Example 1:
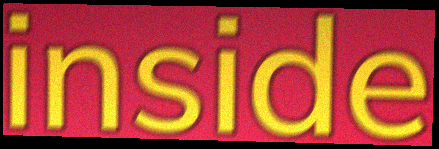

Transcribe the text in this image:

inside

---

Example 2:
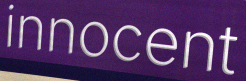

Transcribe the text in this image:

innocent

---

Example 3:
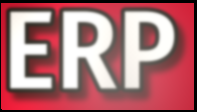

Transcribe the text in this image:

ERP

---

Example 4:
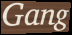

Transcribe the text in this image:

Gang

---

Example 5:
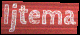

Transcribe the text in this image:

Ijtema